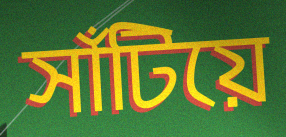
সাঁটিয়ে